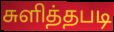
சுளித்தபடி